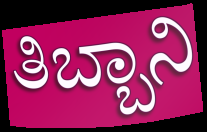
ತಿಬ್ಬಾನಿ